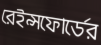
রেইন্সফোর্ডের